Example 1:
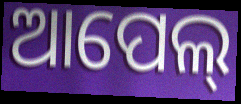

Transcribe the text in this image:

ଆପେଲ୍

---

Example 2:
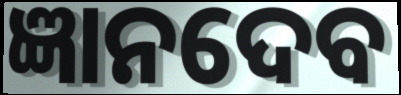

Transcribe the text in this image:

ଜ୍ଞାନଦେବ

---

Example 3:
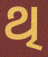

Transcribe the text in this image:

ଥି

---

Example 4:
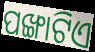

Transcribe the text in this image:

ପଙ୍ଖାଟିଏ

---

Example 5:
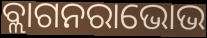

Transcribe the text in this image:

ବ୍ଲାଗନରାଭୋଭ